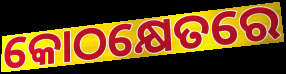
କୋଠକ୍ଷେତରେ